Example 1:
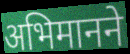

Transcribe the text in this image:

अभिमानने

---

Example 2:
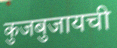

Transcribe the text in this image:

कुजबुजायची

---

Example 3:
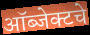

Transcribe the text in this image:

ऑब्जेक्टचे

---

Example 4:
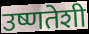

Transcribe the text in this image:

उष्णतेशी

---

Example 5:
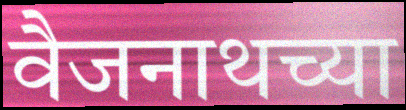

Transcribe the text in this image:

वैजनाथच्या